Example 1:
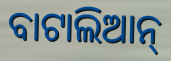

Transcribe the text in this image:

ବାଟାଲିଆନ୍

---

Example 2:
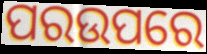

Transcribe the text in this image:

ପରଉପରେ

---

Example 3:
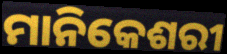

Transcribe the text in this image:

ମାନିକେଶରୀ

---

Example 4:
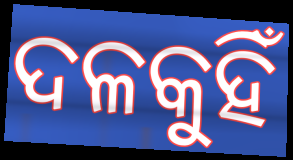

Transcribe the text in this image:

ଦଳକୁହିଁ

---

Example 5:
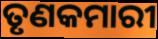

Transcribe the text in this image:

ତୃଣକମାରୀ